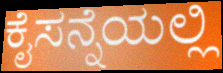
ಕೈಸನ್ನೆಯಲ್ಲಿ